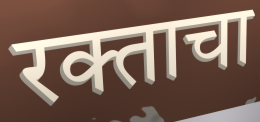
रक्‍ताचा